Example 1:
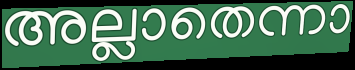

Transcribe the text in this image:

അല്ലാതെന്നാ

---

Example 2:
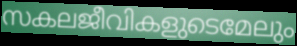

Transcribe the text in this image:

സകലജീവികളുടെമേലും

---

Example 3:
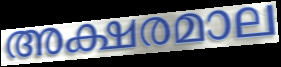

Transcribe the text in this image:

അക്ഷരമാല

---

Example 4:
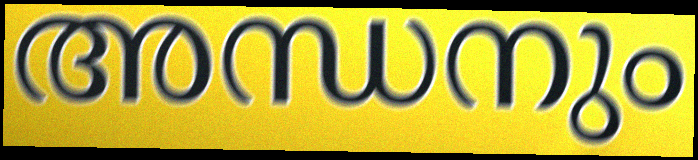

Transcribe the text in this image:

അന്ധനും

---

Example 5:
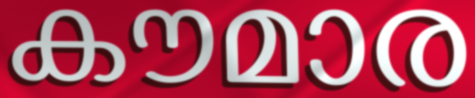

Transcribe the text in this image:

കൗമാര